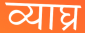
व्याघ्र